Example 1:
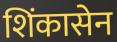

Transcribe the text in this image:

शिंकासेन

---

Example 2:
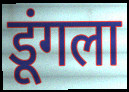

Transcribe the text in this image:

डूंगला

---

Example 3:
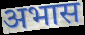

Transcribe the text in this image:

अभास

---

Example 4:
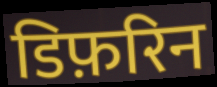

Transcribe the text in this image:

डिफ़रिन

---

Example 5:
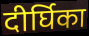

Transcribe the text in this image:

दीर्घिका